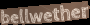
bellwether